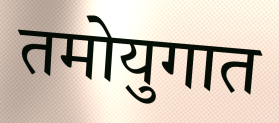
तमोयुगात